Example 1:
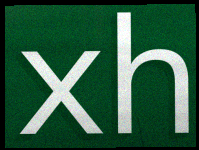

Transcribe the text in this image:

xh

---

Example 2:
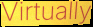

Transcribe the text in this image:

Virtually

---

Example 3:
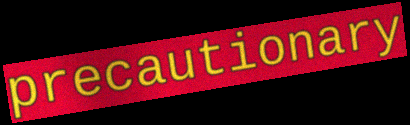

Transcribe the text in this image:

precautionary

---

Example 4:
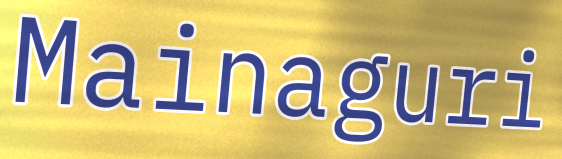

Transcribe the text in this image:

Mainaguri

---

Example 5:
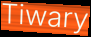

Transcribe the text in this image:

Tiwary